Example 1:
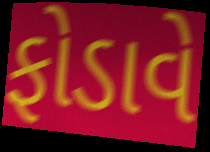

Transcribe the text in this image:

ફોડાવે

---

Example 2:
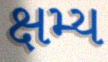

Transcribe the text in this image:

ક્ષમ્ય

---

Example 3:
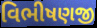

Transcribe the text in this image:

વિભીષણજી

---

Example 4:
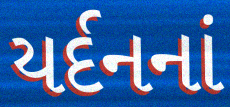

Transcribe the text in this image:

યર્દનનાં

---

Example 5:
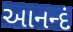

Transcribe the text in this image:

આનન્દં